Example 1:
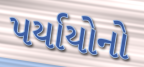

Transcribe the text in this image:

પર્યાયોનો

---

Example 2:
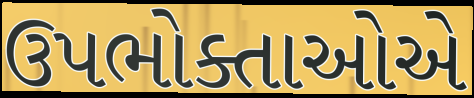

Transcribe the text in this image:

ઉપભોક્તાઓએ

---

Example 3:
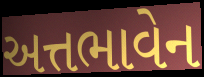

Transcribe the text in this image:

અત્તભાવેન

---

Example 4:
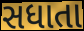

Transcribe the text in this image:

સધાતા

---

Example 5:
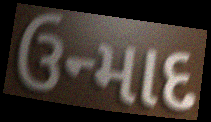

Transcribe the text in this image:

ઉન્માદ